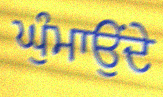
ਘੁੰਮਾਉਂਦੇ